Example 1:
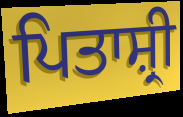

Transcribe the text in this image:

ਪਿਤਾਸ਼੍ਰੀ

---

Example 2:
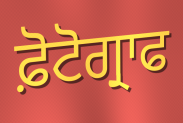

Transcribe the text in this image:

ਫ਼ੋਟੋਗ੍ਰਾਫ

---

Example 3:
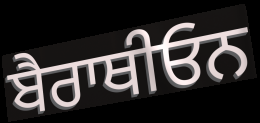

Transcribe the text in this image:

ਬੈਰਾਥੀਓਨ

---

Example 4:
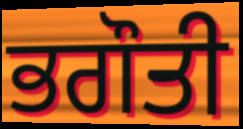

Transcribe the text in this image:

ਭਗੌਤੀ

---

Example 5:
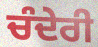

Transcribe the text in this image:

ਚੰਦੇਰੀ